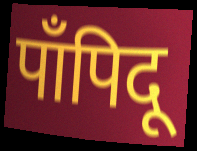
पाँपिदू